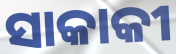
ସାକାକୀ